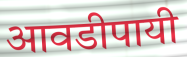
आवडीपायी